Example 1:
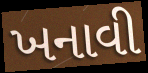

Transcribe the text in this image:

ખનાવી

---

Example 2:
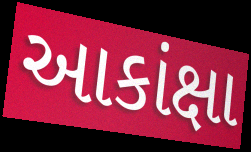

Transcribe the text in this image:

આકાંક્ષા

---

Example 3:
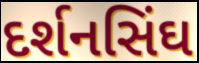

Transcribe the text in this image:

દર્શનસિંઘ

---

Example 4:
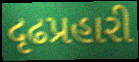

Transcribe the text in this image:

દૃઢપ્રહારી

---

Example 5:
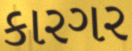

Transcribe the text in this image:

કારગર